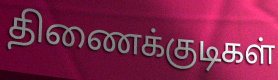
திணைக்குடிகள்